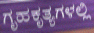
ಗೃಹಕೃತ್ಯಗಳಲ್ಲಿ